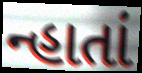
ન્હાતાં